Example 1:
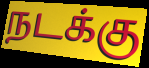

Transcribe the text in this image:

நடக்கு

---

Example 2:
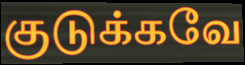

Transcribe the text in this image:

குடுக்கவே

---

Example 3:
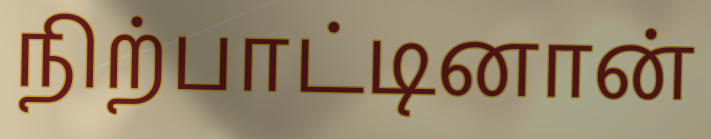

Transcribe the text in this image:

நிற்பாட்டினான்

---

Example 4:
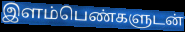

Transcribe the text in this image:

இளம்பெண்களுடன்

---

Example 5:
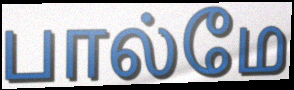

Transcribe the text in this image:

பால்மே